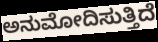
ಅನುಮೋದಿಸುತ್ತಿದೆ